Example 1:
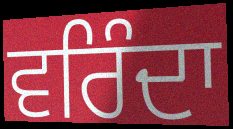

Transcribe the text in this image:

ਵਰਿੰਦਾ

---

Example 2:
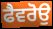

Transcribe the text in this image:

ਫੈਵਰੋਉ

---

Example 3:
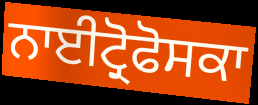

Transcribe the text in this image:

ਨਾਈਟ੍ਰੋਫੋਸਕਾ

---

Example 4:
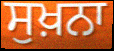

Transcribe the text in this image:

ਸੁਖ਼ਨਾ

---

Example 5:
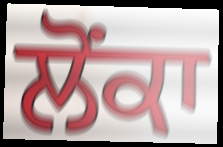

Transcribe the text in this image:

ਲੋਂਕਾ